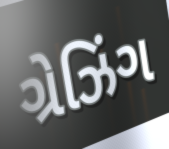
ગ્રેઝિંગ